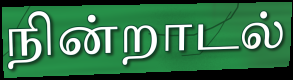
நின்றாடல்